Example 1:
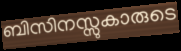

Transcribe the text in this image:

ബിസിനസ്സുകാരുടെ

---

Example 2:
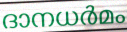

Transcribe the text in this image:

ദാനധർമം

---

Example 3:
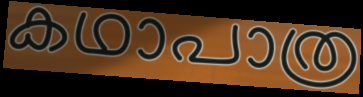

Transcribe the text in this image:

കഥാപാത്ര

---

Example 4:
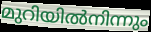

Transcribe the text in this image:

മുറിയിൽനിന്നും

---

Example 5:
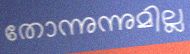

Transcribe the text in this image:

തോന്നുന്നുമില്ല